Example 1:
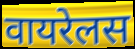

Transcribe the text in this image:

वायरेलस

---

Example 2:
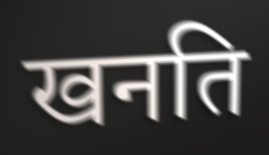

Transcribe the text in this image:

खनति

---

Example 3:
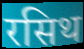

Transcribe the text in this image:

रसिथ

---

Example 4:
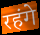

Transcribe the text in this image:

रहंगे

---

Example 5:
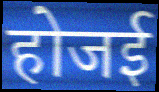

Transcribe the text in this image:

होजई